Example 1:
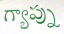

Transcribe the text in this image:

గ్యాప్ను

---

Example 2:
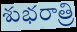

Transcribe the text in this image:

శుభరాత్రి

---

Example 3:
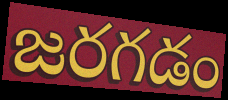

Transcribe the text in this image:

జరగడం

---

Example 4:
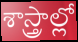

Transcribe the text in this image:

శాస్త్రాల్లో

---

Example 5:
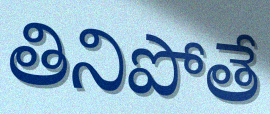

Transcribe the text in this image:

తినిపోతే